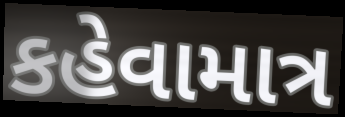
કહેવામાત્ર